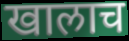
खालाच